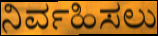
ನಿರ್ವಹಿಸಲು